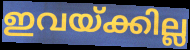
ഇവയ്ക്കില്ല